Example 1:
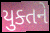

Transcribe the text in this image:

યુક્તને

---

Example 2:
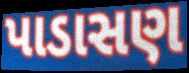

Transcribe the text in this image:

પાડાસણ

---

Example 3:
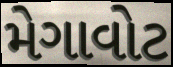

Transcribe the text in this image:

મેગાવોટ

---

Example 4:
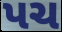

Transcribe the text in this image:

પચ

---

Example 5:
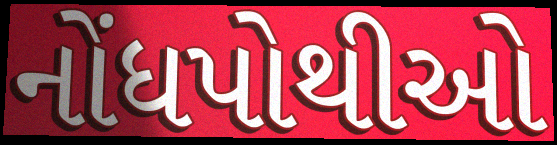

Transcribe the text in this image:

નોંધપોથીઓ